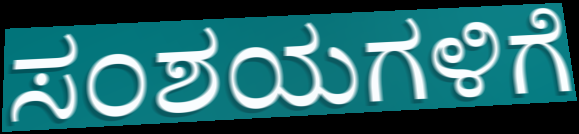
ಸಂಶಯಗಳಿಗೆ